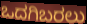
ಒದಗಿಬರಲು